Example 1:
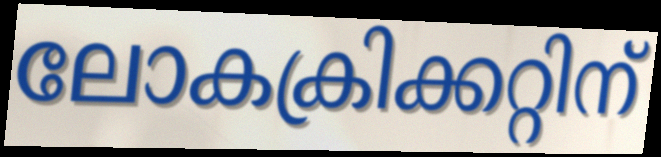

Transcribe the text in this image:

ലോകക്രിക്കറ്റിന്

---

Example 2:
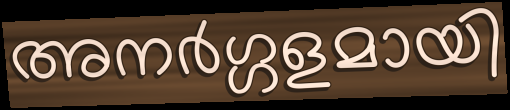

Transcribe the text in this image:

അനർഗ്ഗളമായി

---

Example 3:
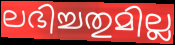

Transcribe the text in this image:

ലഭിച്ചതുമില്ല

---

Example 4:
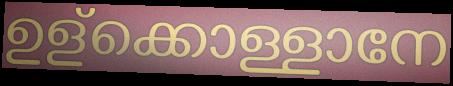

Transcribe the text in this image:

ഉള്ക്കൊള്ളാനേ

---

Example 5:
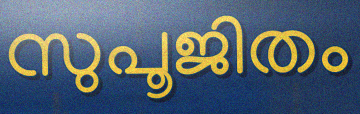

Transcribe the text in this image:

സുപൂജിതം